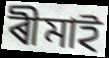
ৰীমাই